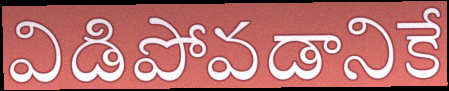
విడిపోవడానికే